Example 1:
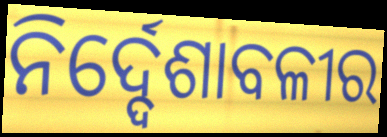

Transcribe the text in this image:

ନିର୍ଦ୍ଦେଶାବଳୀର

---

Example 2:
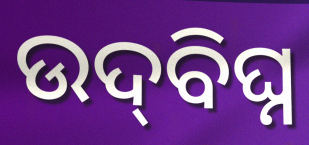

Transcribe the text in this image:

ଉଦ୍‍ବିଘ୍ନ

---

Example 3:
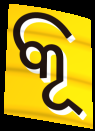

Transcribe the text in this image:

କୂ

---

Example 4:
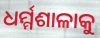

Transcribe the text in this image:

ଧର୍ମ୍ମଶାଳାକୁ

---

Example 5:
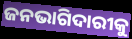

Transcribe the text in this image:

ଜନଭାଗିଦାରୀକୁ